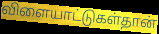
விளையாட்டுகள்தான்